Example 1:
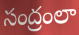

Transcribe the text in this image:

సంద్రంలా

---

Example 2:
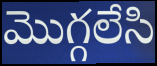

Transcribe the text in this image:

మొగ్గలేసి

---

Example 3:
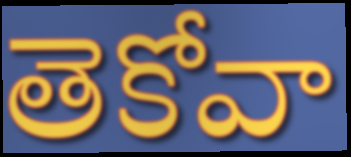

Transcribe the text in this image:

తెకోవా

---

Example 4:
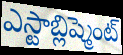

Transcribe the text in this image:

ఎస్టాబ్లిష్మెంట్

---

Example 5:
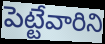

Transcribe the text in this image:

పెట్టేవారిని